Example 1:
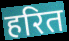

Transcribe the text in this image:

हरित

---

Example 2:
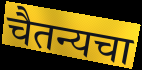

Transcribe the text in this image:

चैतन्यचा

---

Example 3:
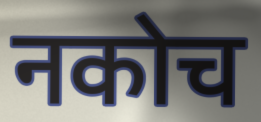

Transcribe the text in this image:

नकोच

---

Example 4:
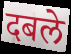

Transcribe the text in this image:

दबले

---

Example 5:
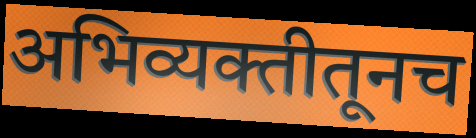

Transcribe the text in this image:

अभिव्यक्तीतूनच